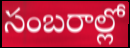
సంబరాల్లో